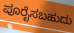
ಪೂರೈಸಬಹುದು